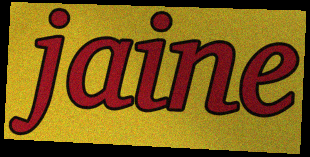
jaine